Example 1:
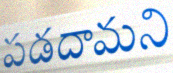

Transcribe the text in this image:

పడదామని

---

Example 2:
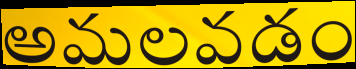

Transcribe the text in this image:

అమలవడం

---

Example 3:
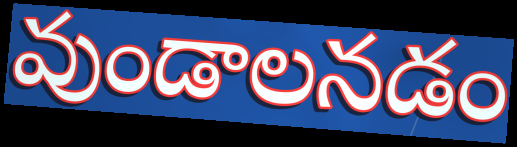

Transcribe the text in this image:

వుండాలనడం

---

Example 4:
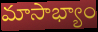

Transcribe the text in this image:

మాసాభ్యాం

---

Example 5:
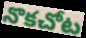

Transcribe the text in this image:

నొకచోట